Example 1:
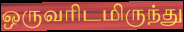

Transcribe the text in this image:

ஒருவரிடமிருந்து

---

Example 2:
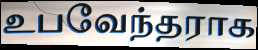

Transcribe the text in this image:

உபவேந்தராக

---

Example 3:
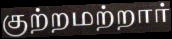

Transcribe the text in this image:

குற்றமற்றார்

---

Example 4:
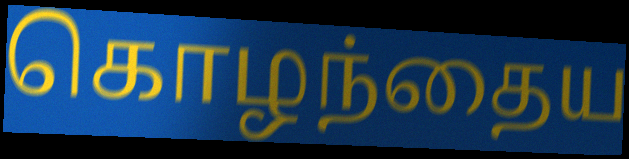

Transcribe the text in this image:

கொழந்தைய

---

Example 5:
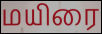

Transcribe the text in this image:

மயிரை